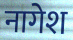
नागेश